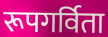
रूपगर्विता